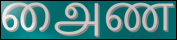
அைண